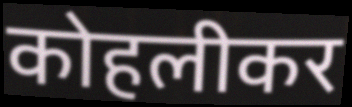
कोहलीकर